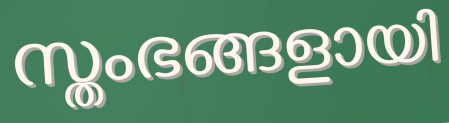
സ്തംഭങ്ങളായി